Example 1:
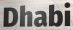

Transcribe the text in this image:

Dhabi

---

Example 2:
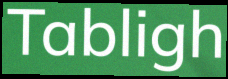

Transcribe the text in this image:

Tabligh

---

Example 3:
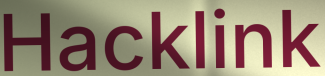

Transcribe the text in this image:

Hacklink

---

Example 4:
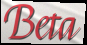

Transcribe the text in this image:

Beta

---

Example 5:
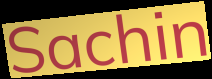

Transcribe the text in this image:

Sachin